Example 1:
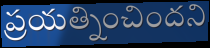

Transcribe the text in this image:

ప్రయత్నించిందని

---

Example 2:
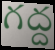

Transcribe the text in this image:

గద్ద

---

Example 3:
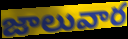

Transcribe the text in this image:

జాలువార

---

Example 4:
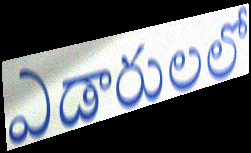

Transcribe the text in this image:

ఎడారులలో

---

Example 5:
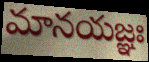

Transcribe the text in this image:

మానయజ్ఞః